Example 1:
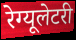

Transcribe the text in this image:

रेग्यूलेटरी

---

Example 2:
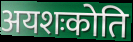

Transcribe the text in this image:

अयशःकोति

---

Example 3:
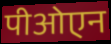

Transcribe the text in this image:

पीओएन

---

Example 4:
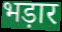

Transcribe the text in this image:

भड़ार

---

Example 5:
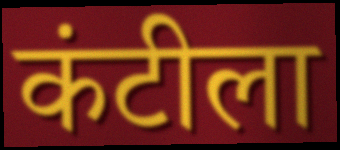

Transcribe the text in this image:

कंटीला